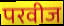
परवीज